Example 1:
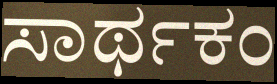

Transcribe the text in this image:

ಸಾರ್ಥಕಂ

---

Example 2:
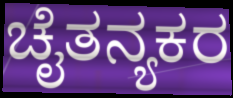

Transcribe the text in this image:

ಚೈತನ್ಯಕರ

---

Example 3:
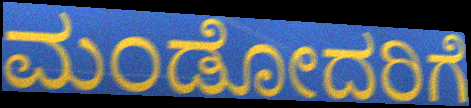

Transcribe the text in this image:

ಮಂಡೋದರಿಗೆ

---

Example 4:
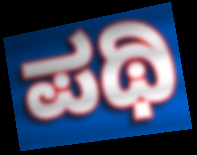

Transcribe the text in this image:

ಪಥಿ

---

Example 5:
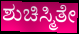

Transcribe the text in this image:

ಶುಚಿಸ್ಮಿತೇ